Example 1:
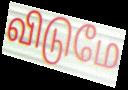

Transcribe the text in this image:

விடுமே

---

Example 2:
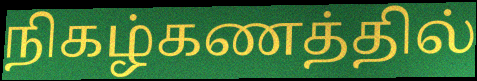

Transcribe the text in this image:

நிகழ்கணத்தில்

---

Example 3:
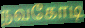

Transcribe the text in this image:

நவகோடி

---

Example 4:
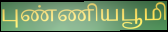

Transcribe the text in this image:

புண்ணியபூமி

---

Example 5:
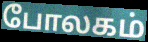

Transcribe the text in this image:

போலகம்